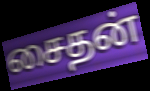
சைதன்